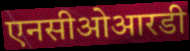
एनसीओआरडी